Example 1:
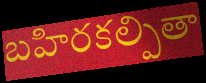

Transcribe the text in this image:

బహిరకల్పితా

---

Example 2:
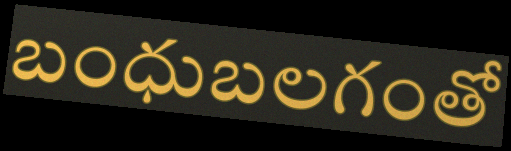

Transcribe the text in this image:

బంధుబలగంతో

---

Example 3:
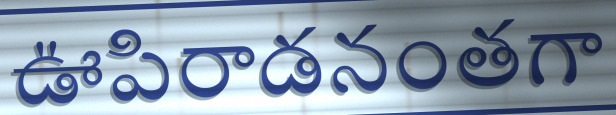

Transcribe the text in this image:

ఊపిరాడనంతగా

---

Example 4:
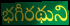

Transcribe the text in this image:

భగీరథుని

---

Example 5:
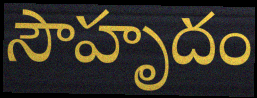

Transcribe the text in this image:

సౌహృదం